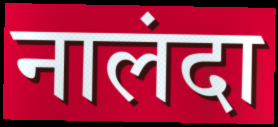
नालंदा